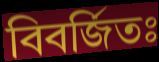
বিবর্জিতঃ